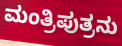
ಮಂತ್ರಿಪುತ್ರನು